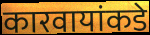
कारवायांकडे